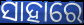
ସାହାରେ